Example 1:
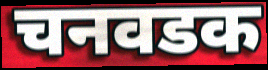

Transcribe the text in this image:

चनवडक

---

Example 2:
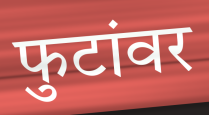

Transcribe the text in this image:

फुटांवर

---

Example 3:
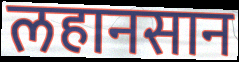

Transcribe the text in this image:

लहानसान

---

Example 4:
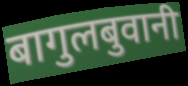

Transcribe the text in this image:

बागुलबुवानी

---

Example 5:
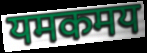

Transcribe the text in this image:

यमकमय